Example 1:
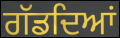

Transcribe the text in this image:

ਗੱਡਦਿਆਂ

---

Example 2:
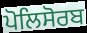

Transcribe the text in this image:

ਪੋਲਿਸੋਰਬ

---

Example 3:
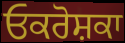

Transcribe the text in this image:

ਓਕਰੋਸ਼ਕਾ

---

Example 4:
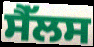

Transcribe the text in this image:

ਸੈੱਲਸ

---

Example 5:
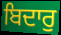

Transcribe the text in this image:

ਬਿਦਾਰੁ